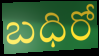
బధిరో